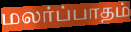
மலர்ப்பாதம்